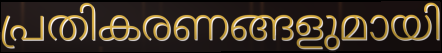
പ്രതികരണങ്ങളുമായി